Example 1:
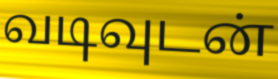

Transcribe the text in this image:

வடிவுடன்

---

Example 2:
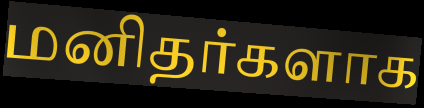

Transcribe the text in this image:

மனிதர்களாக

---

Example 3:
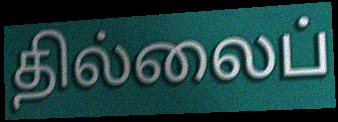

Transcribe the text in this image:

தில்லைப்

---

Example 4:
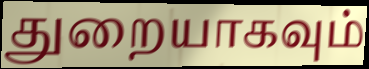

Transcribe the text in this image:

துறையாகவும்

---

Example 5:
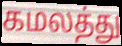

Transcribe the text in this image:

கமலத்து